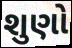
શુણો